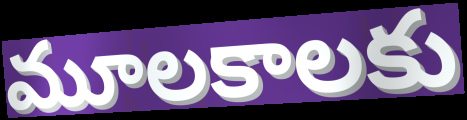
మూలకాలకు